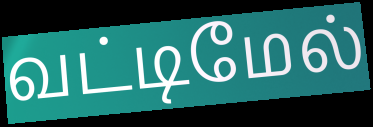
வட்டிமேல்